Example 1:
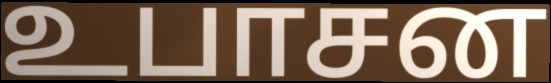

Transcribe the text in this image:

உபாசன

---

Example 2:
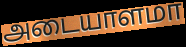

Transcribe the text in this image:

அடையாளமா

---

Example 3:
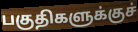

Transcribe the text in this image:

பகுதிகளுக்குச்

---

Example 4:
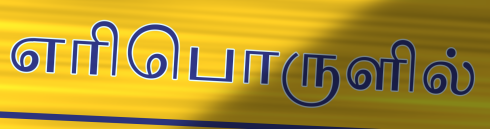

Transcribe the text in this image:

எரிபொருளில்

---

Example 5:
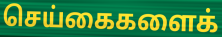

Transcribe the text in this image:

செய்கைகளைக்